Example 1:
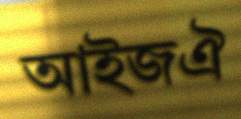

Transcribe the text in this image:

আইজঐ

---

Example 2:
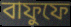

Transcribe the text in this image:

বাফুফে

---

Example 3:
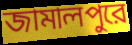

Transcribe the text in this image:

জামালপুরে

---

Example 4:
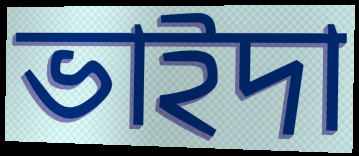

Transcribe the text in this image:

ভাইদা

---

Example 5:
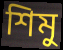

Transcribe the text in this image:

শিমু